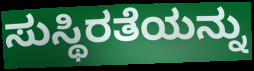
ಸುಸ್ಥಿರತೆಯನ್ನು